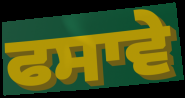
ਫਸਾਵੇ